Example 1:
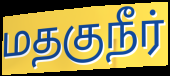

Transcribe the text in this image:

மதகுநீர்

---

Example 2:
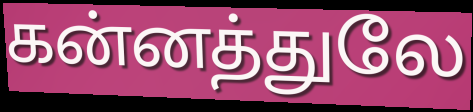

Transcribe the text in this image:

கன்னத்துலே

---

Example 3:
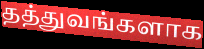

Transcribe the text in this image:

தத்துவங்களாக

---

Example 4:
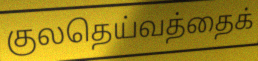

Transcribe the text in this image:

குலதெய்வத்தைக்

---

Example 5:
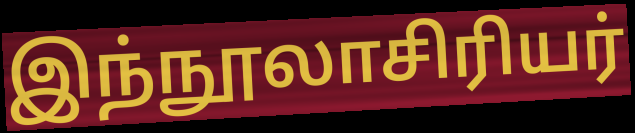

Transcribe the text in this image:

இந்நூலாசிரியர்